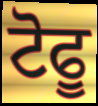
ਟੋਫੂ